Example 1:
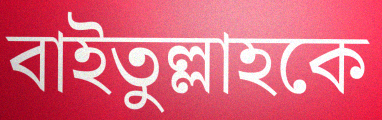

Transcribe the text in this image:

বাইতুল্লাহকে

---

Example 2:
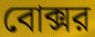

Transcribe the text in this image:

বোক্সর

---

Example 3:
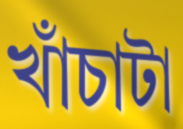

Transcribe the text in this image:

খাঁচাটা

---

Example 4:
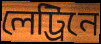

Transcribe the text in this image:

লেট্রিনে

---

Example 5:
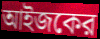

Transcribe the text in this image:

আইজকের